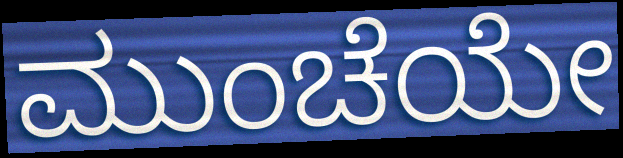
ಮುಂಚೆಯೇ